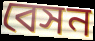
বেসন